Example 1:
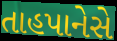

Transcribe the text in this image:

તાહપાનેસે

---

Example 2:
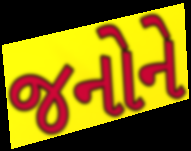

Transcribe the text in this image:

જનોને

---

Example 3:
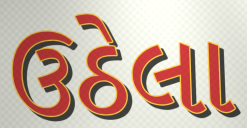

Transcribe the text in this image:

ઉઠેલા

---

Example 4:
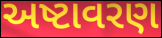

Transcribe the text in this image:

અષ્ટાવરણ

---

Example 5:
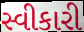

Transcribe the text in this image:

સ્વીકારી